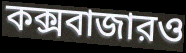
কক্সবাজারও